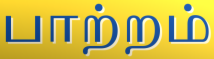
பாற்றம்